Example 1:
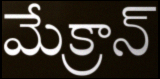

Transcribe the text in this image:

మేక్రాన్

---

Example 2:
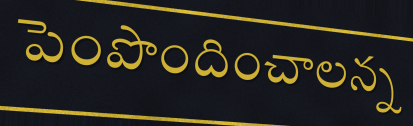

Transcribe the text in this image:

పెంపొందించాలన్న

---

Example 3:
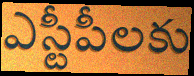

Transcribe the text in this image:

ఎస్టీపీలకు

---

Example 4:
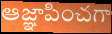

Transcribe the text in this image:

ఆజ్ఞాపించగా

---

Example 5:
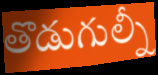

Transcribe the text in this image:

తొడుగుల్నీ